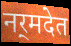
नर्मदेत